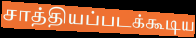
சாத்தியப்படக்கூடிய